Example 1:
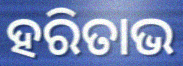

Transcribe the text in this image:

ହରିତାଭ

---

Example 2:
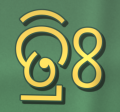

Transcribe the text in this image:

ତ୍ରିଃ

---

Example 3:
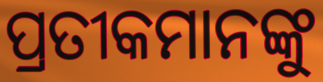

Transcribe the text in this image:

ପ୍ରତୀକମାନଙ୍କୁ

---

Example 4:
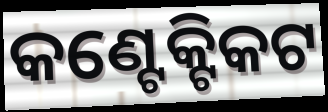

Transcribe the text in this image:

କଣ୍ଟେକ୍ଟିକଟ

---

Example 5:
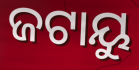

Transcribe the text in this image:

ଜଟାୟୁ